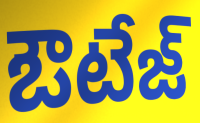
ఔటేజ్